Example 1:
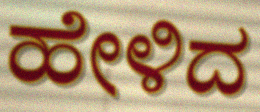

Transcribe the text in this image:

ಹೇಳಿದ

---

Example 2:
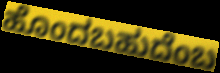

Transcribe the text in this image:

ಹೊಂದಬಹುದೆಂಬ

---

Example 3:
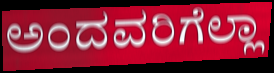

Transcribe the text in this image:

ಅಂದವರಿಗೆಲ್ಲಾ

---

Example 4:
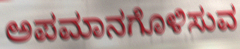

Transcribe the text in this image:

ಅಪಮಾನಗೊಳಿಸುವ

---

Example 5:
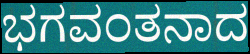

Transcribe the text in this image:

ಭಗವಂತನಾದ